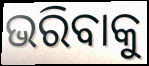
ଭରିବାକୁ